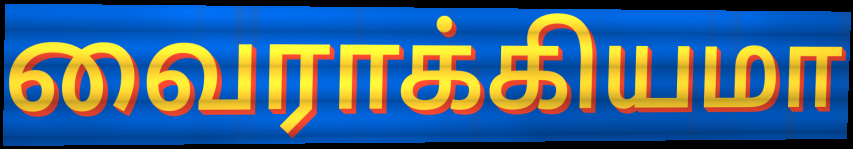
வைராக்கியமா